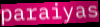
paraiyas